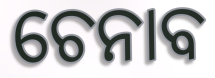
ଚେନାବ